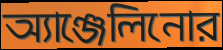
অ্যাঞ্জেলিনোর